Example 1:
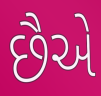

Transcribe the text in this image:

છૈએ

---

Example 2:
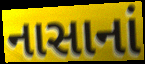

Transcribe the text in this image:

નાસાનાં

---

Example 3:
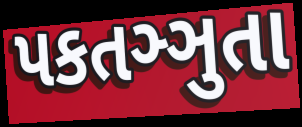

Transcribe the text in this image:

પકતઞ્ઞુતા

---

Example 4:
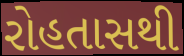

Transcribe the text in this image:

રોહતાસથી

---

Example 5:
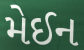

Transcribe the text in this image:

મેઈન